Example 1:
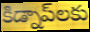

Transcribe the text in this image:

కిడ్నాప్‌లకు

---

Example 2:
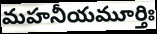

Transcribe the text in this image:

మహనీయమూర్తిః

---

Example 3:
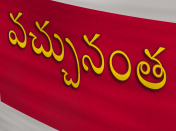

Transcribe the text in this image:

వచ్చునంత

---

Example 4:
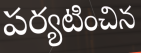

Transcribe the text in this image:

పర్యటించిన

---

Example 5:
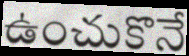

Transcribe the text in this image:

ఉంచుకొనే